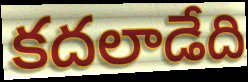
కదలాడేది